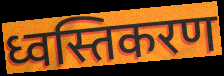
ध्वस्तिकरण